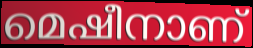
മെഷീനാണ്